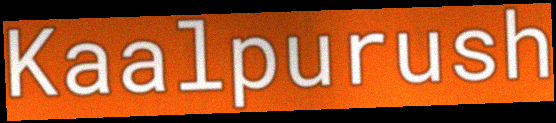
Kaalpurush